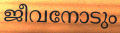
ജീവനോടും